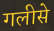
गलीसे